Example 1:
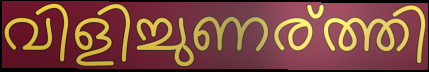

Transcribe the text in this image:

വിളിച്ചുണര്ത്തി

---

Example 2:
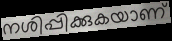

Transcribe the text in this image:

നശിപ്പിക്കുകയാണ്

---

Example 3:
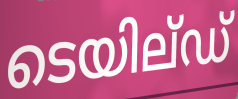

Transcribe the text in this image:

ടെയില്ഡ്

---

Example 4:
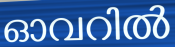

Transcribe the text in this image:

ഓവറിൽ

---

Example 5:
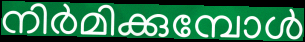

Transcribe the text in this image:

നിർമിക്കുമ്പോൾ